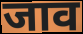
जाव